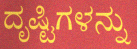
ದೃಷ್ಟಿಗಳನ್ನು